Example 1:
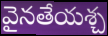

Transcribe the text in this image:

వైనతేయశ్చ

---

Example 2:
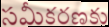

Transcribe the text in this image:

సమీకరణకు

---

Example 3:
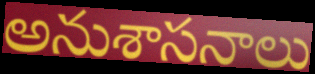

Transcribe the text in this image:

అనుశాసనాలు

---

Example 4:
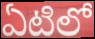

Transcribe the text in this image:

ఏటిలో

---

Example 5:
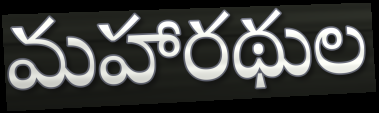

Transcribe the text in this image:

మహారథుల